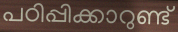
പഠിപ്പിക്കാറുണ്ട്